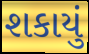
શકાયું